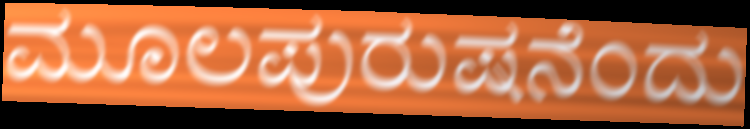
ಮೂಲಪುರುಷನೆಂದು